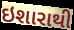
ઇશારાથી